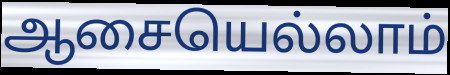
ஆசையெல்லாம்